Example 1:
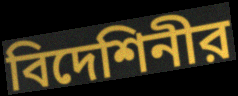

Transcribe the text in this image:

বিদেশিনীর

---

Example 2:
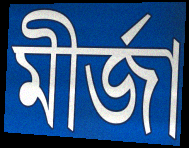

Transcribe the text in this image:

মীর্জা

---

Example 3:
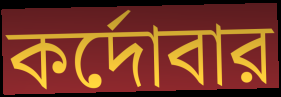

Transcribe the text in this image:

কর্দোবার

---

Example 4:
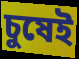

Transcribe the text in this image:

চুষেই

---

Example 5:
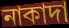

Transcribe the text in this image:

নাকাদা